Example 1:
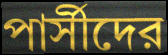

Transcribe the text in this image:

পার্সীদের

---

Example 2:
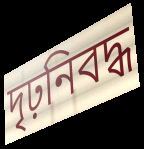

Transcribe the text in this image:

দৃঢ়নিবদ্ধ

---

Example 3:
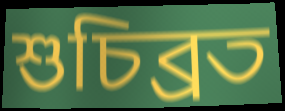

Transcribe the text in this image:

শুচিব্রত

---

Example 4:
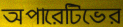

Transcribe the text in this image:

অপারেটিভের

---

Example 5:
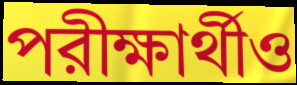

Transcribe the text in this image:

পরীক্ষার্থীও